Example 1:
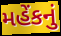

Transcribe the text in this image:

મહેંકનું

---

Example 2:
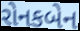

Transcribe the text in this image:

રોનકબેન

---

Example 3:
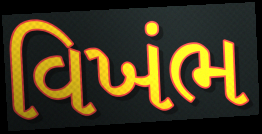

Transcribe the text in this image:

વિખંભ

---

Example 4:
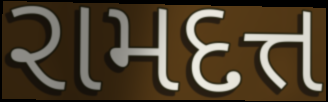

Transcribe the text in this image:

રામદત્ત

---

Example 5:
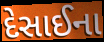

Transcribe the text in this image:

દેસાઈના